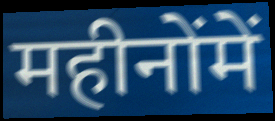
महीनोंमें